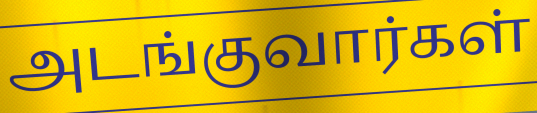
அடங்குவார்கள்